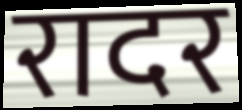
रादर